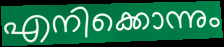
എനിക്കൊന്നും